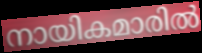
നായികമാരിൽ